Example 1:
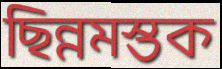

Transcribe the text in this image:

ছিন্নমস্তক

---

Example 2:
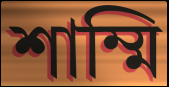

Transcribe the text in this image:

শাম্মি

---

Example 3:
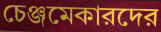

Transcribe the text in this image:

চেঞ্জমেকারদের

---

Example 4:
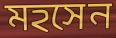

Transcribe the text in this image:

মহসেন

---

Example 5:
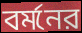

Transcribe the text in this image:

বর্মনের